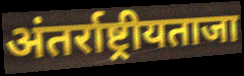
अंतर्राष्ट्रीयताजा